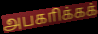
அபகரிக்கக்